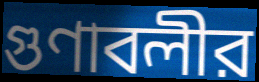
গুণাবলীর